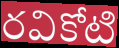
రవికోటి